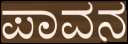
ಪಾವನ